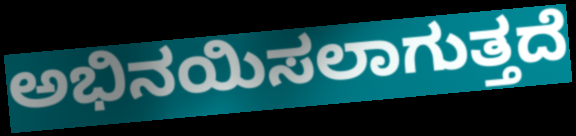
ಅಭಿನಯಿಸಲಾಗುತ್ತದೆ